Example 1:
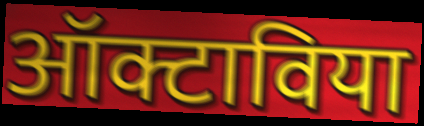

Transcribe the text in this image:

ऑक्टाविया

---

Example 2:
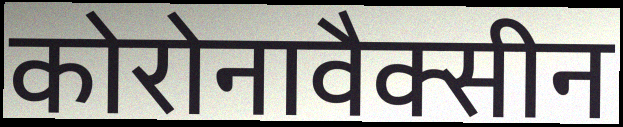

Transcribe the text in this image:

कोरोनावैक्सीन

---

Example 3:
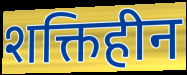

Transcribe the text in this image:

शक्तिहीन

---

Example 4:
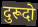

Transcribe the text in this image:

दुरूदो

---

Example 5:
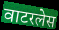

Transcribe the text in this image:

वाटरलेस